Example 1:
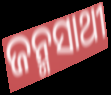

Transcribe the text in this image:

ଜନ୍ମସାଥୀ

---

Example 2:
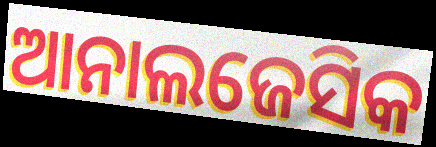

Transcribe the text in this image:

ଆନାଲଜେସିକ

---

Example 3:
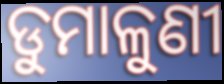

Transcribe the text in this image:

ଡୁମାଳୁଣୀ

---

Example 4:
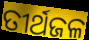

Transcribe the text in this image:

ତୀର୍ଥଜଳ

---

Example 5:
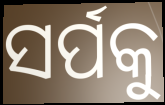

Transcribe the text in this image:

ସର୍ପକୁ